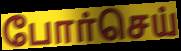
போர்செய்